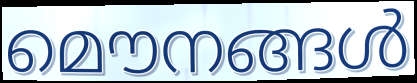
മൌനങ്ങൾ